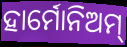
ହାର୍ମୋନିଅମ୍